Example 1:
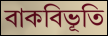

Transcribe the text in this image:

বাকবিভূতি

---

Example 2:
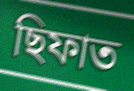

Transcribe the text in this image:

ছিফাত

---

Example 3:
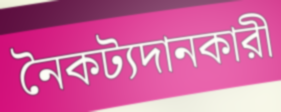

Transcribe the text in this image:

নৈকট্যদানকারী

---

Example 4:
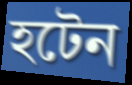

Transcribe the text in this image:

হটেন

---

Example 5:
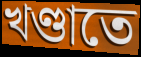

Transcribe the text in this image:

খণ্ডাতে